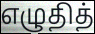
எழுதித்